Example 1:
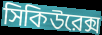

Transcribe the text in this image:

সিকিউরেক্স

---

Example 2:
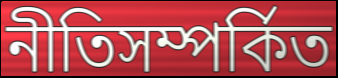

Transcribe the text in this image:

নীতিসম্পর্কিত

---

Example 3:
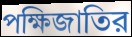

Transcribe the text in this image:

পক্ষিজাতির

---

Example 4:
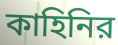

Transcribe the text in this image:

কাহিনির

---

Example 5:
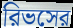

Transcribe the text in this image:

রিভসের